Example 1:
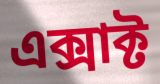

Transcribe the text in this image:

এক্সাক্ট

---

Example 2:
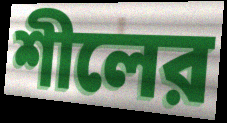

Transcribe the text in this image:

শীলের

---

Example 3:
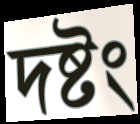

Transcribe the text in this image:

দষ্টং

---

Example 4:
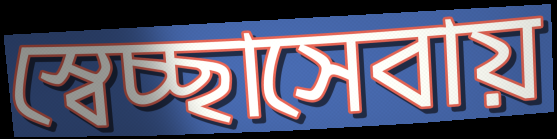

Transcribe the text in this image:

স্বেচ্ছাসেবায়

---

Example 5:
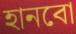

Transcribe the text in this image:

হানবো